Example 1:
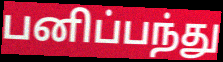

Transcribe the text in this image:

பனிப்பந்து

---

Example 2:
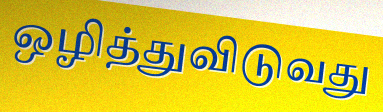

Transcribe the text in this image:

ஒழித்துவிடுவது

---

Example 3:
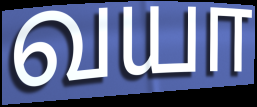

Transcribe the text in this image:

வயா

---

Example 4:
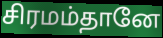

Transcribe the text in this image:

சிரமம்தானே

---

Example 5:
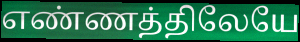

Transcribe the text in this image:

எண்ணத்திலேயே